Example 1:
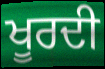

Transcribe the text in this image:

ਖੂਰਦੀ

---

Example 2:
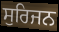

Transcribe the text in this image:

ਸੁਰਿਜਨ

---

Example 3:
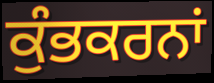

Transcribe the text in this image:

ਕੁੰਭਕਰਨਾਂ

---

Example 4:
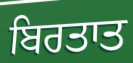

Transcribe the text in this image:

ਬਿਰਤਾਤ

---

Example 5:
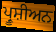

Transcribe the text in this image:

ਪ੍ਰੂਸ਼ੀਅਨ